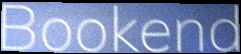
Bookend